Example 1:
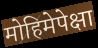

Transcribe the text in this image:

मोहिमेपेक्षा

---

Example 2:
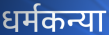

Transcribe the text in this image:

धर्मकन्या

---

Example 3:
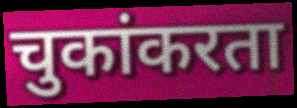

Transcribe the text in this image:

चुकांकरता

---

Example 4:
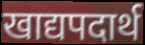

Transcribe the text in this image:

खाद्यपदार्थ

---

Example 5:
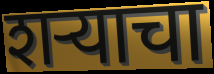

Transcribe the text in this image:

शर्‍याचा